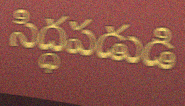
సిద్ధపడుడి